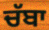
ਚੱਬਾ